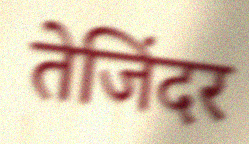
तेजिंदर